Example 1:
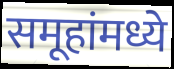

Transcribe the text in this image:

समूहांमध्ये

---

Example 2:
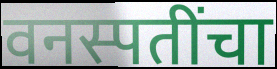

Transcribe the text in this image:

वनस्पतींचा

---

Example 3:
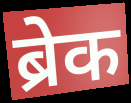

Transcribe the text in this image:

ब्रेक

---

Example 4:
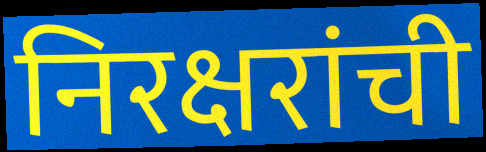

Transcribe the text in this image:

निरक्षरांची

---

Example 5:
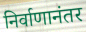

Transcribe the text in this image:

निर्वाणानंतर